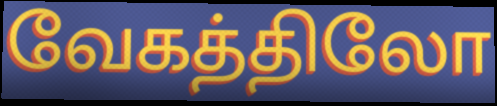
வேகத்திலோ